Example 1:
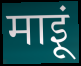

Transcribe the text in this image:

माइूं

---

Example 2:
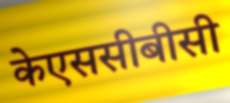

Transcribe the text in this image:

केएससीबीसी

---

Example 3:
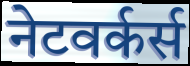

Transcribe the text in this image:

नेटवर्कर्स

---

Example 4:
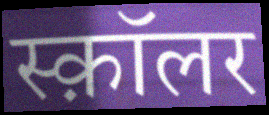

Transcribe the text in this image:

स्क़ॉलर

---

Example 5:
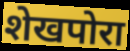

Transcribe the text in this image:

शेखपोरा